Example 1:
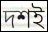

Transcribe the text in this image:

দশই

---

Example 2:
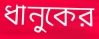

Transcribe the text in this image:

ধানুকের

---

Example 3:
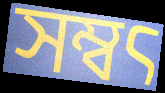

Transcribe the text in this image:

সম্বৎ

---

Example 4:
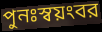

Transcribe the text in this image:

পুনঃস্বয়ংবর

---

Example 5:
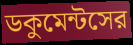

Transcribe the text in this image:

ডকুমেন্টসের